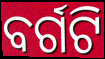
ବର୍ଗଟି